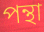
পন্থা